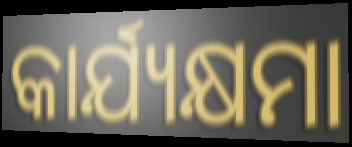
କାର୍ଯ୍ୟକ୍ଷମା